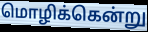
மொழிக்கென்று